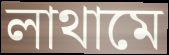
লাথামে